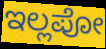
ಇಲ್ಲಪೋ